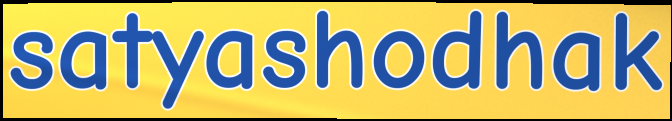
satyashodhak